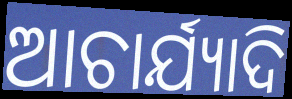
ଆଚାର୍ଯ୍ୟାଦି